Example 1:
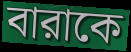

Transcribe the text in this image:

বারাকে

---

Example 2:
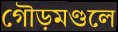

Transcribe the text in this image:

গৌড়মণ্ডলে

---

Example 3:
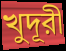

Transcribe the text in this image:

খুদূরী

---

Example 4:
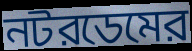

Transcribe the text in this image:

নটরডেমের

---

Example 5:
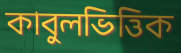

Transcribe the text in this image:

কাবুলভিত্তিক